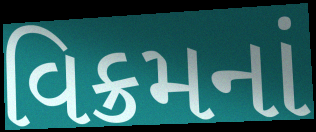
વિક્રમનાં